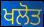
ਖਲੋਤ